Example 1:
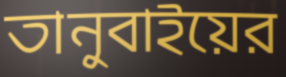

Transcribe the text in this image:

তানুবাইয়ের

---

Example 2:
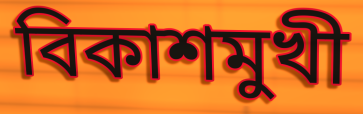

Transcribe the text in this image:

বিকাশমুখী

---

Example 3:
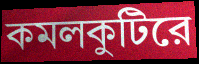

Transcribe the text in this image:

কমলকুটিরে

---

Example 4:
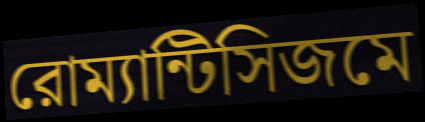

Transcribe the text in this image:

রোম্যান্টিসিজমে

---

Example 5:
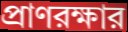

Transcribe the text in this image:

প্রাণরক্ষার